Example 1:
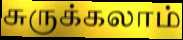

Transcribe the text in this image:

சுருக்கலாம்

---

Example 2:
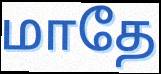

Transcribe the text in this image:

மாதே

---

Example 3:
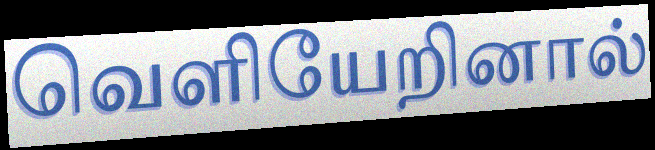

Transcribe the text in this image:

வெளியேறினால்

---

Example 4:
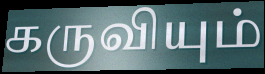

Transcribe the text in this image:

கருவியும்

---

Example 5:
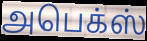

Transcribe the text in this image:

அபெக்ஸ்